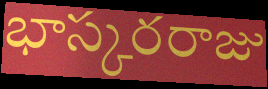
భాస్కరరాజు